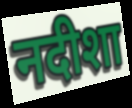
नदीशा